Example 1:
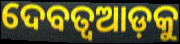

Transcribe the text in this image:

ଦେବତ୍ୱଆଡ଼କୁ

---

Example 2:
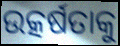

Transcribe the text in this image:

ଉତ୍କର୍ଷତାକୁ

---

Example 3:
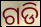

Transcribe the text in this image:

ଗଡି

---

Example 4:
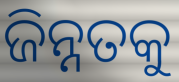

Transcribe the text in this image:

ଜିନ୍ନତକୁ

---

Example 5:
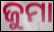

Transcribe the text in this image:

ଜୁମା